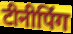
टीनीपिंग